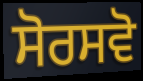
ਸੋਰਸਵੋ